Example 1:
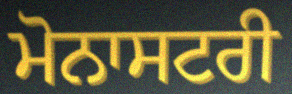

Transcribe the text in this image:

ਮੋਨਾਸਟਰੀ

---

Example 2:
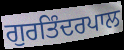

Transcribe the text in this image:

ਗੁਰਤਿੰਦਰਪਾਲ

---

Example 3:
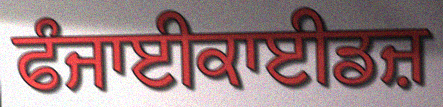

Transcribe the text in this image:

ਫੰਜਾਈਕਾਈਡਜ਼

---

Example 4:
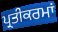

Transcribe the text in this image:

ਪ੍ਰਤੀਕਰਮਾਂ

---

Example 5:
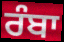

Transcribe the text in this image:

ਰੰਬਾ